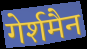
गेर्शमैन